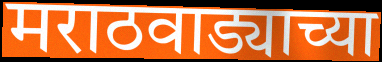
मराठवाड्याच्या